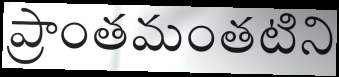
ప్రాంతమంతటిని